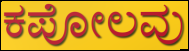
ಕಪೋಲವು